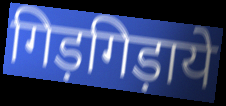
गिड़गिड़ाये